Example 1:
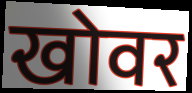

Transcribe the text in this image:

खोवर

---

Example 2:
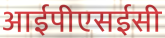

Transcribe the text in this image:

आईपीएसईसी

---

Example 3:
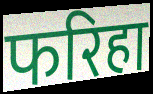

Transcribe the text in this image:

फरिहा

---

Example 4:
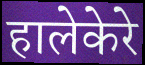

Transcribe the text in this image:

हालेकेरे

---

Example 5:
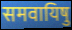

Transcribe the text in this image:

समवायिषु